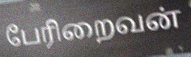
பேரிறைவன்